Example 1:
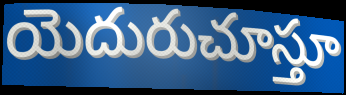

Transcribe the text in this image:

యెదురుచూస్తూ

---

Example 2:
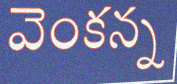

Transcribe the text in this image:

వెంకన్న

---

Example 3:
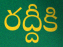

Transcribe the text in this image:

రద్దీకి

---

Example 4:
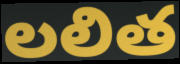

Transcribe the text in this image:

లలిత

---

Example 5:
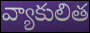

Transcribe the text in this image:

వ్యాకులిత